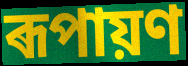
ৰূপায়ণ